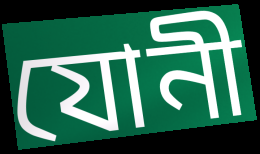
যোনী